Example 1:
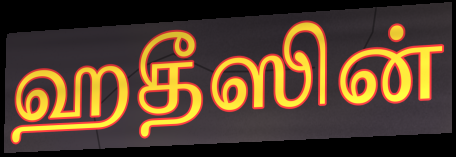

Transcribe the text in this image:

ஹதீஸின்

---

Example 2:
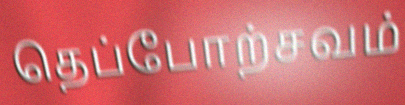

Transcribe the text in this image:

தெப்போற்சவம்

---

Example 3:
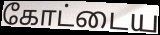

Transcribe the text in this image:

கோட்டைய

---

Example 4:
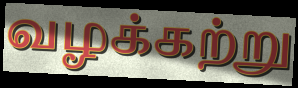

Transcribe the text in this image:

வழக்கற்று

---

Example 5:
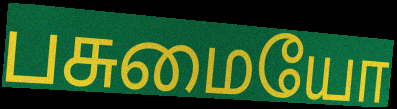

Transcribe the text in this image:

பசுமையோ